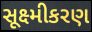
સૂક્ષ્મીકરણ